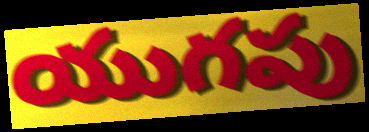
యుగపు